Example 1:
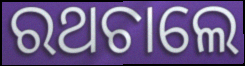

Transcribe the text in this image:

ରଥଚାଲେ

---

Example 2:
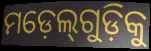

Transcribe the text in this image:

ମଡ଼େଲ୍‌ଗୁଡ଼ିକୁ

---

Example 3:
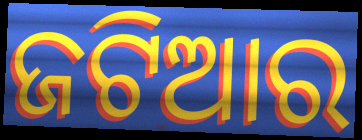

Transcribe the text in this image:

ଜଟିଆର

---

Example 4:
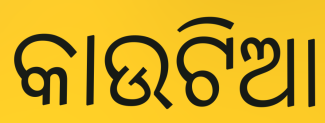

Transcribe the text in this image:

କାଉଟିଆ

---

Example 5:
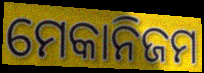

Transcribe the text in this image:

ମେକାନିଜମ